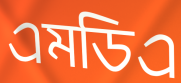
এমডিএ